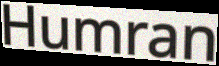
Humran